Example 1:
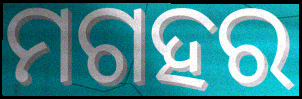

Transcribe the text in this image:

ମଗହର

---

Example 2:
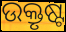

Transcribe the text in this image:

ଉକ୍ତୃଷ୍ଟ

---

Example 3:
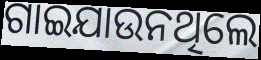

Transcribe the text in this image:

ଗାଇଯାଉନଥିଲେ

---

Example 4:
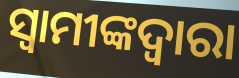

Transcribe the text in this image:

ସ୍ୱାମୀଙ୍କଦ୍ୱାରା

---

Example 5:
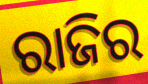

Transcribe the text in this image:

ରାଜିର